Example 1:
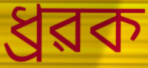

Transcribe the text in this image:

ধ্ৰৱক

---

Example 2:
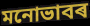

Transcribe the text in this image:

মনোভাবৰ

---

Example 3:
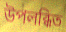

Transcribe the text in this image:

উপলব্ধিত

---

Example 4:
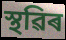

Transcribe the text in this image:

স্থৱিৰ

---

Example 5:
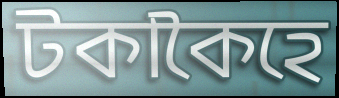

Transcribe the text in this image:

টকাকৈহে